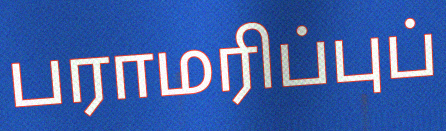
பராமரிப்புப்